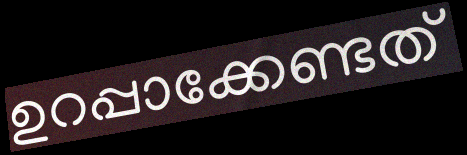
ഉറപ്പാക്കേണ്ടത്